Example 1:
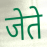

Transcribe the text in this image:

जेते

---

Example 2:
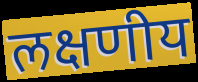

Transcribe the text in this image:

लक्षणीय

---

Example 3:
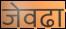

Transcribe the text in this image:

जेवढा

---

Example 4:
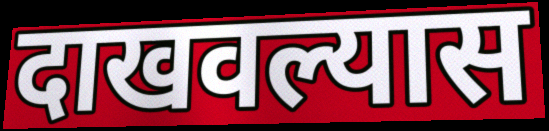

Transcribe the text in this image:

दाखवल्यास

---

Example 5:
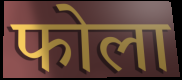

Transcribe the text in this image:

फोला